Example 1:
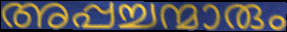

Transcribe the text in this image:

അപ്പച്ചന്മാരും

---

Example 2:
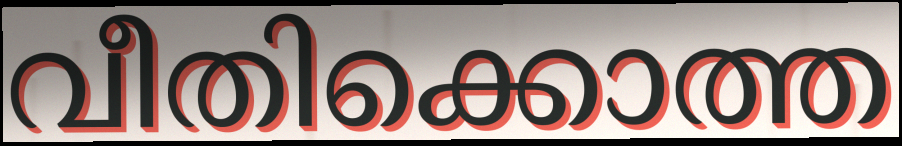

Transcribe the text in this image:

വീതിക്കൊത്ത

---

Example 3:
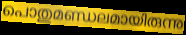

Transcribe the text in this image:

പൊതുമണ്ഡലമായിരുന്നു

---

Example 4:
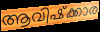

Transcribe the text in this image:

ആവിഷ്‌ക്കാര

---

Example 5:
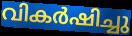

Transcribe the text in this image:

വികർഷിച്ചു